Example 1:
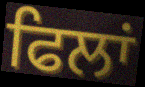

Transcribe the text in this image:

ਫਿਲਾਂ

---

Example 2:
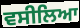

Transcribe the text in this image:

ਵਸੀਲਿਆ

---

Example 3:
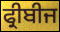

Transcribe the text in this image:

ਫ੍ਰੀਬੀਜ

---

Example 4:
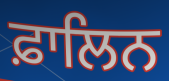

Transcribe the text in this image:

ਫ਼ਾਲਿਨ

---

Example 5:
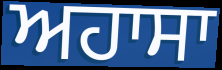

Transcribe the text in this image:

ਅਹਾਸਾ